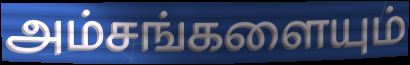
அம்சங்களையும்